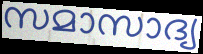
സമാസാദ്യ